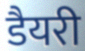
डैयरी